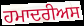
ਹਮਾਦਰੀਅਸ